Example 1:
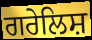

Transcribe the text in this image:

ਗਰੇਲਿਸ਼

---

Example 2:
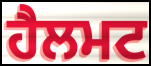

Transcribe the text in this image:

ਹੈਲਮਟ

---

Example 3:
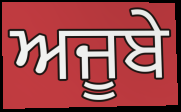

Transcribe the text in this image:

ਅਜੂਬੇ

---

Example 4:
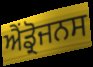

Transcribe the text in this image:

ਐਂਡ੍ਰੋਜਨਸ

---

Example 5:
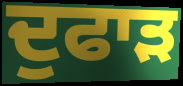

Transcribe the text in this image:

ਦੁਫਾੜ